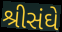
શ્રીસંઘે